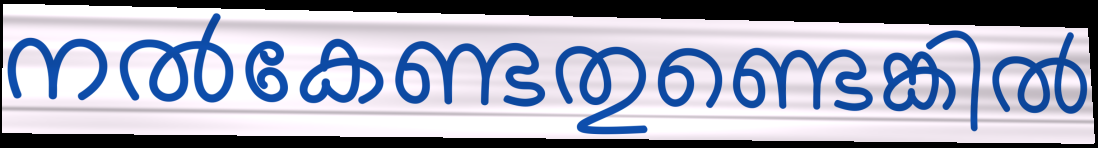
നൽകേണ്ടതുണ്ടെങ്കിൽ